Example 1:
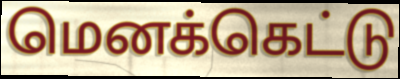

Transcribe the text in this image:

மெனக்கெட்டு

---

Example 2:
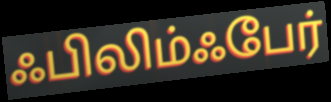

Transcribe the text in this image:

ஃபிலிம்ஃபேர்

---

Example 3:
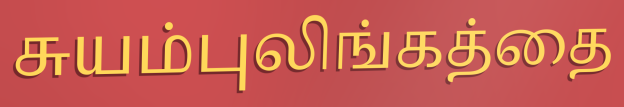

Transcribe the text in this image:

சுயம்புலிங்கத்தை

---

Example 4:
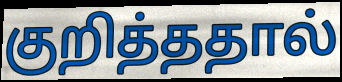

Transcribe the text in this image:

குறித்ததால்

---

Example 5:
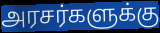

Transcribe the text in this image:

அரசர்களுக்கு